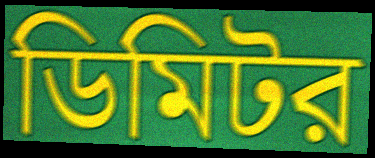
ডিমিটর